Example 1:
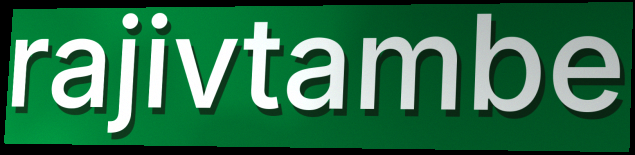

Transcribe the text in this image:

rajivtambe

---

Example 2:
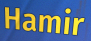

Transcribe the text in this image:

Hamir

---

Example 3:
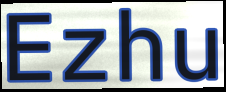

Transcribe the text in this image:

Ezhu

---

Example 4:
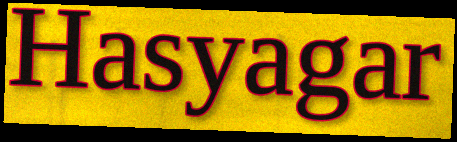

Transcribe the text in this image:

Hasyagar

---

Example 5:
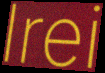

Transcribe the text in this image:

Irei